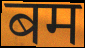
बम